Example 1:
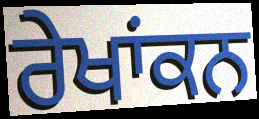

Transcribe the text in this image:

ਰੇਖਾਂਕਨ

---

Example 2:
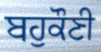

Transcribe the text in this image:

ਬਹੁਕੌਣੀ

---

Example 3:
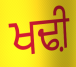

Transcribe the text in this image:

ਖਢ਼ੀ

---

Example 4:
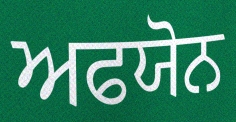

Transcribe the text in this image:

ਅਫਯੋਨ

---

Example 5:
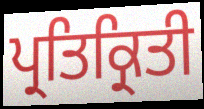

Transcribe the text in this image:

ਪ੍ਰਤਿਕ੍ਰਿਤੀ